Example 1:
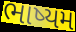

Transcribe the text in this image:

ભાષ્યમ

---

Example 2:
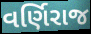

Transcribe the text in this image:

વર્ણિરાજ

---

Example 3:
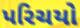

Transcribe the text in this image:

પરિચયો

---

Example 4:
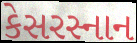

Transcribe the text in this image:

કેસરસ્નાન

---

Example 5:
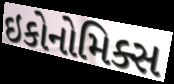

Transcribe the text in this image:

ઇકોનોમિક્સ